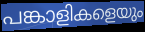
പങ്കാളികളെയും